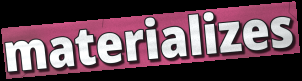
materializes